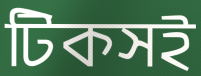
টিকসই